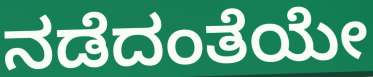
ನಡೆದಂತೆಯೇ